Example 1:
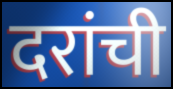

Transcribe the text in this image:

दरांची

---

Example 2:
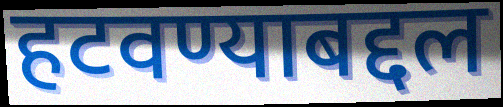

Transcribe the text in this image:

हटवण्याबद्दल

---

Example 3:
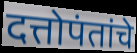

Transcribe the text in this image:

दत्तोपंतांचे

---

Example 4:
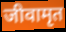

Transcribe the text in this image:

जीवामृत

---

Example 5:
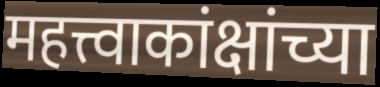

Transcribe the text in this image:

महत्त्वाकांक्षांच्या